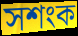
সশংক